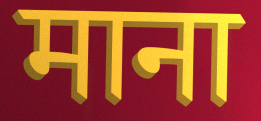
माना